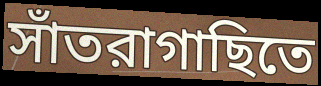
সাঁতরাগাছিতে